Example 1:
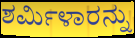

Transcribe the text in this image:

ಶರ್ಮಿಳಾರನ್ನು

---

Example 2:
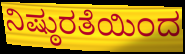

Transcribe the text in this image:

ನಿಷ್ಠುರತೆಯಿಂದ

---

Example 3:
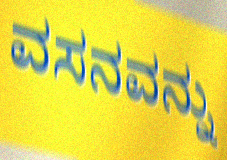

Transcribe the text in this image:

ವಸನವನ್ನು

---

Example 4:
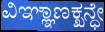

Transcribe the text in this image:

ವಿಞ್ಞಾಣಕ್ಖನ್ಧೇ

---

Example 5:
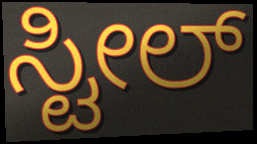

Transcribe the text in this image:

ಸ್ಟೀಲ್